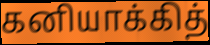
கனியாக்கித்